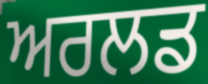
ਅਰਲਡ